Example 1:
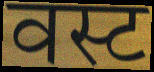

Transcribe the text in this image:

वस्ट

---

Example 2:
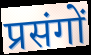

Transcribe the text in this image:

प्रसंगों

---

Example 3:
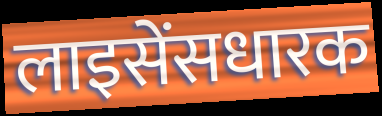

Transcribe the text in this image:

लाइसेंसधारक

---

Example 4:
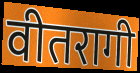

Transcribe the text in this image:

वीतरागी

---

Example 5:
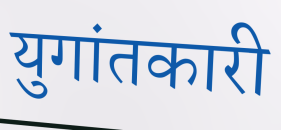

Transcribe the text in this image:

युगांतकारी